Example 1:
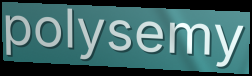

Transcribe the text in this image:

polysemy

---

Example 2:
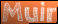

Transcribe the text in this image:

Muir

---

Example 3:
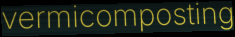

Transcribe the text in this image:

vermicomposting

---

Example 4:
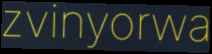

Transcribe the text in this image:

zvinyorwa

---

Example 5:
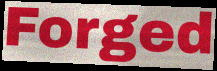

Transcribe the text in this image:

Forged